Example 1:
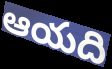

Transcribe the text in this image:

ఆయది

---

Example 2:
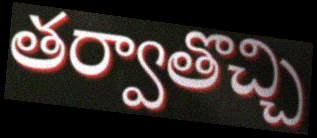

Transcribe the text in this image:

తర్వాతొచ్చి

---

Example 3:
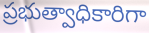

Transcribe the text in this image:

ప్రభుత్వాధికారిగా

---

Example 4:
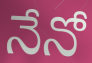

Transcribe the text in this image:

నేనో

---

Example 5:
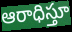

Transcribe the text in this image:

ఆరాధిస్తూ